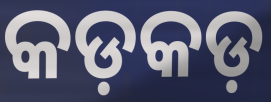
କଡ଼କଡ଼